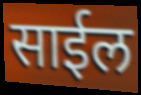
साईल